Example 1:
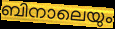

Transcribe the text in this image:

ബിനാലെയും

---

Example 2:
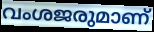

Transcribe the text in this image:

വംശജരുമാണ്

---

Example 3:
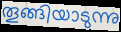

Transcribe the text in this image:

തൂങ്ങിയാടുന്നു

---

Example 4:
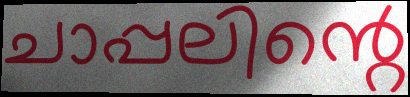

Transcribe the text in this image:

ചാപ്പലിന്റെ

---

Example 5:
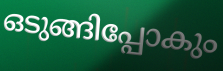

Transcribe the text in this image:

ഒടുങ്ങിപ്പോകും